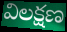
విలక్షణ